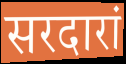
सरदारां